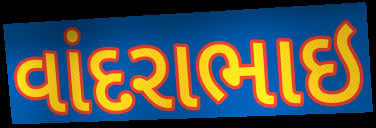
વાંદરાભાઇ